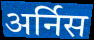
अर्निस